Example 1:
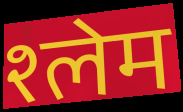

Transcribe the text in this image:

श्लेम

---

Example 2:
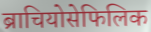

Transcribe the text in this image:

ब्राचियोसेफिलिक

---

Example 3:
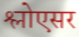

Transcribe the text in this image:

श्लोएसर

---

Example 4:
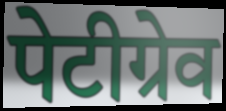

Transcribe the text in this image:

पेटीग्रेव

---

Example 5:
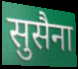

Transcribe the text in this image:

सुसैना